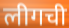
लीगची